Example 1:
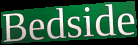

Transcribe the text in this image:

Bedside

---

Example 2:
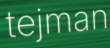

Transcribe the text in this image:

tejman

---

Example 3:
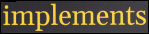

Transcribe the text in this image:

implements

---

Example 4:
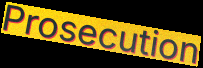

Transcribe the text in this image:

Prosecution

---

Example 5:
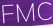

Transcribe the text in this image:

FMC